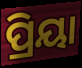
ପ୍ରିୟା